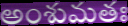
అంశుమతః